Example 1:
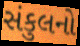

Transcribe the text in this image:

સંકુલનો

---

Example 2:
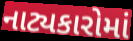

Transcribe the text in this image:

નાટ્યકારોમાં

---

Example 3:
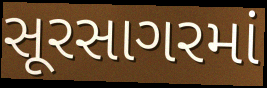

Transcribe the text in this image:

સૂરસાગરમાં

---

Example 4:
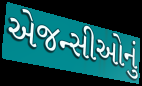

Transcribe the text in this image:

એજન્સીઓનું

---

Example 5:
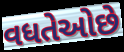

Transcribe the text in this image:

વધતેઓછે